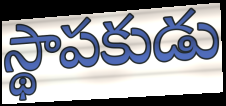
స్థాపకుడు